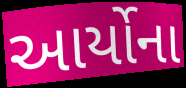
આર્યોના